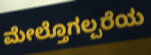
ಮೇಲ್ತೊಗಲ್ಪರೆಯ